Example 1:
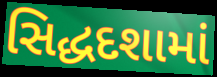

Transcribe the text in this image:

સિદ્ધદશામાં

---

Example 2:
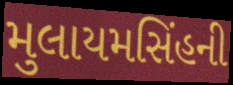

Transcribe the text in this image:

મુલાયમસિંહની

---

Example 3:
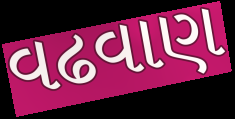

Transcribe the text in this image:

વઢવાણ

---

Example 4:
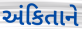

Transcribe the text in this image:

અંકિતાને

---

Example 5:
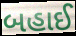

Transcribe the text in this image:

બહાઈ